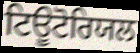
ਟਿਊਟੋਰਿਯਲ